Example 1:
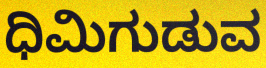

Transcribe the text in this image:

ಧಿಮಿಗುಡುವ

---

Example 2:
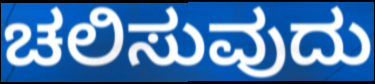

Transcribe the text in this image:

ಚಲಿಸುವುದು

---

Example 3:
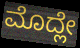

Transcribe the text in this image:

ಮೊದ್ಲೇ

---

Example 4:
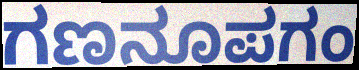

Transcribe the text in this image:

ಗಣನೂಪಗಂ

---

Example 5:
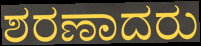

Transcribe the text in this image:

ಶರಣಾದರು